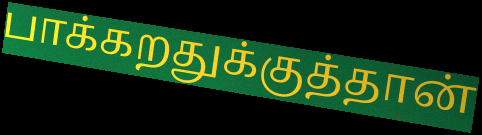
பாக்கறதுக்குத்தான்